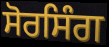
ਸੋਰਸਿੰਗ